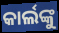
କାର୍ଲଙ୍କୁ